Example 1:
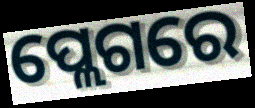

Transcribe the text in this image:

ପ୍ଲେଗରେ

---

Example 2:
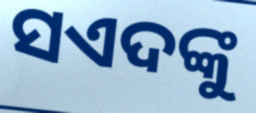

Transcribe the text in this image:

ସଏଦଙ୍କୁ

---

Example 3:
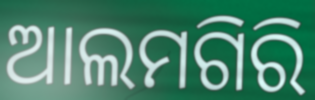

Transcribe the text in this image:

ଆଲମଗିରି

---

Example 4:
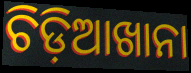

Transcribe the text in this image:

ଚିଡ଼ିଆଖାନା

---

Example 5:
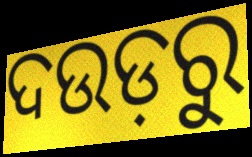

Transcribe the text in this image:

ଦଉଡ଼ରୁ